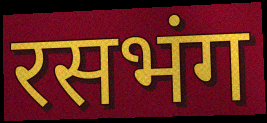
रसभंग